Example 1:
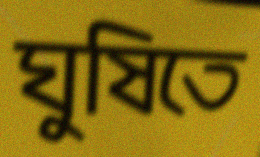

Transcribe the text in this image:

ঘুষিতে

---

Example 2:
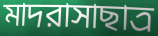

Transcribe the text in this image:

মাদরাসাছাত্র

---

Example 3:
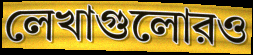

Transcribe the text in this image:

লেখাগুলোরও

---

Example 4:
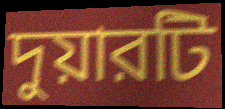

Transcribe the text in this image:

দুয়ারটি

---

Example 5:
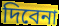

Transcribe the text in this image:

দিবেনা